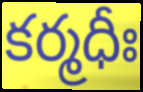
కర్మధీః